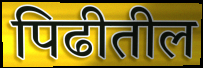
पिढीतील